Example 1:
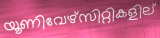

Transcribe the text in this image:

യൂണിവേഴ്സിറ്റികളില്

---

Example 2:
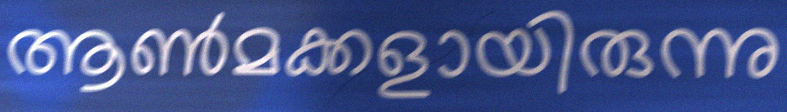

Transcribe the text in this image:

ആൺമക്കളായിരുന്നു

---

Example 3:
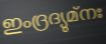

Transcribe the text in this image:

ഇംദ്രദ്യുമ്നഃ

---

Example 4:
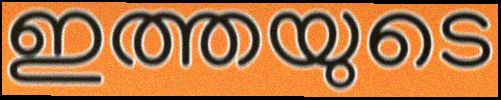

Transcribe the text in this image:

ഇത്തയുടെ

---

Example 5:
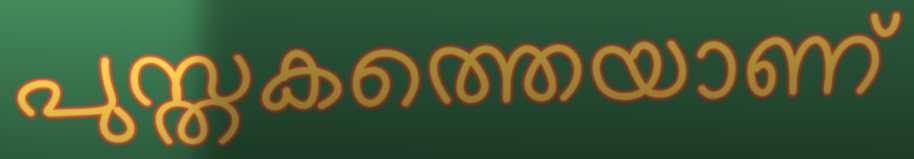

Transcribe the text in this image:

പുസ്തകത്തെയാണ്